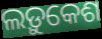
ଲଡ଼ୁକେଶ